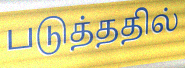
படுத்ததில்